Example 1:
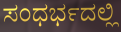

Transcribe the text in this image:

ಸಂಧರ್ಭದಲ್ಲಿ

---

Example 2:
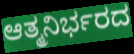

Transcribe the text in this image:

ಆತ್ಮನಿರ್ಭರದ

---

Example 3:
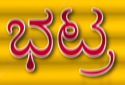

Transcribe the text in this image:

ಭಟ್ರ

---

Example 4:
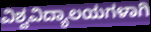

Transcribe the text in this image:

ವಿಶ್ವವಿದ್ಯಾಲಯಗಳಾಗಿ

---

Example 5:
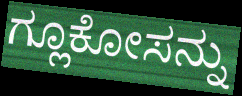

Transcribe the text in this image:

ಗ್ಲೂಕೋಸನ್ನು